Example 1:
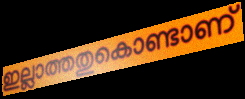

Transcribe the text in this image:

ഇല്ലാത്തതുകൊണ്ടാണ്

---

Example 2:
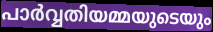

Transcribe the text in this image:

പാർവ്വതിയമ്മയുടെയും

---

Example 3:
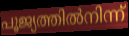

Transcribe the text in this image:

പൂജ്യത്തിൽനിന്ന്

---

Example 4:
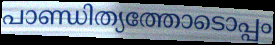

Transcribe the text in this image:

പാണ്ഡിത്യത്തോടൊപ്പം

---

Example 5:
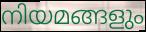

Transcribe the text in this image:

നിയമങ്ങളും